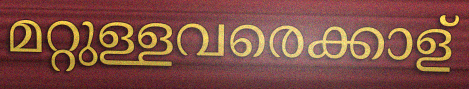
മറ്റുള്ളവരെക്കാള്